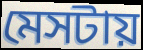
মেসটায়